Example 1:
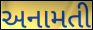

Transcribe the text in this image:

અનામતી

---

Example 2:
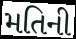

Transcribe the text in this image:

મતિની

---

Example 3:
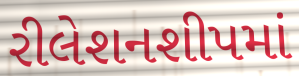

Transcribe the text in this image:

રીલેશનશીપમાં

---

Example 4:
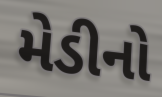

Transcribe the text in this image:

મેડીનો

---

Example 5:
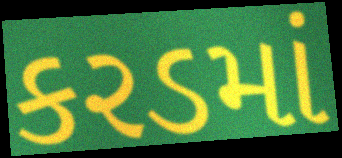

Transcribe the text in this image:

કરડમાં